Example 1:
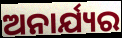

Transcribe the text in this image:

ଅନାର୍ଯ୍ୟର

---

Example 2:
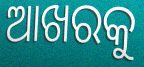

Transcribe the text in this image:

ଆଖରକୁ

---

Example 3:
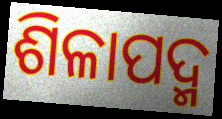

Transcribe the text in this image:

ଶିଳାପଦ୍ମ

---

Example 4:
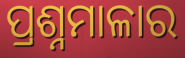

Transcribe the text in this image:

ପ୍ରଶ୍ନମାଳାର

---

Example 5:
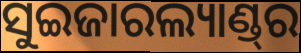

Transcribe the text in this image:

ସୁଇଜାରଲ୍ୟାଣ୍ଡ୍‌ର